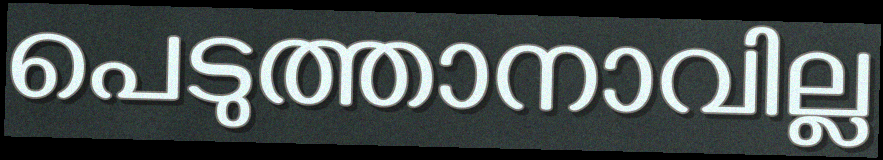
പെടുത്താനാവില്ല